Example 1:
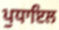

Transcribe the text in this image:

ਪੁਧਾਇਲ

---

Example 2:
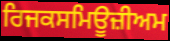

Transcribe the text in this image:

ਰਿਜਕਸਮਿਊਜ਼ੀਅਮ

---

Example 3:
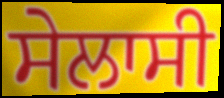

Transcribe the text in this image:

ਸੇਲਾਸੀ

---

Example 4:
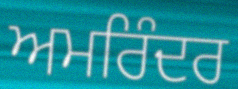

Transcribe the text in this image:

ਅਮਰਿੰਦਰ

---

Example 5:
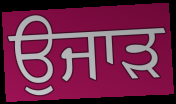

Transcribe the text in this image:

ਉਜਾੜ